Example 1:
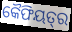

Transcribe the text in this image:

କୈଫିୟତ୍‌ର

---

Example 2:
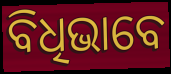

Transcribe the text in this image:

ବିଧିଭାବେ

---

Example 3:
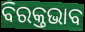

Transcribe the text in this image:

ବିରକ୍ତଭାବ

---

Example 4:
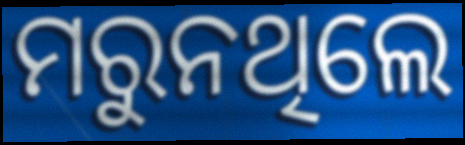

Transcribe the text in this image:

ମରୁନଥିଲେ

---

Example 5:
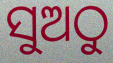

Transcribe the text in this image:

ସୁଅଠୁ